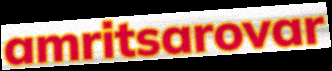
amritsarovar